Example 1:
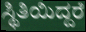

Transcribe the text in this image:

ಸ್ಥಿತಿಯಿದ್ದರೆ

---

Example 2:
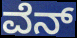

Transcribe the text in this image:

ವೆನ್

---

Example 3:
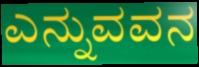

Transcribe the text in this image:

ಎನ್ನುವವನ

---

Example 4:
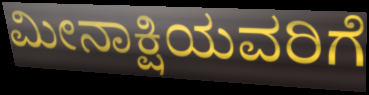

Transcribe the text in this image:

ಮೀನಾಕ್ಷಿಯವರಿಗೆ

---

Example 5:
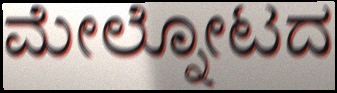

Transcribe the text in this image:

ಮೇಲ್ನೋಟದ